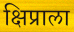
क्षिप्राला